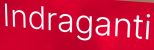
Indraganti